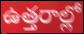
ఉత్తరాల్లో